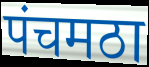
पंचमठा